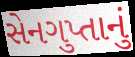
સેનગુપ્‍તાનું